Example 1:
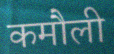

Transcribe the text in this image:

कमौली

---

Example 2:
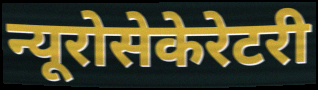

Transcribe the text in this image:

न्यूरोसेकेरेटरी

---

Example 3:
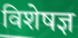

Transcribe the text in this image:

विशेषज्ञ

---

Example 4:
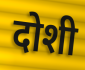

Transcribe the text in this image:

दोशी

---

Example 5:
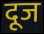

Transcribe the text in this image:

दूज